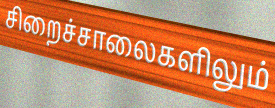
சிறைச்சாலைகளிலும்